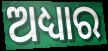
ଅଧ୍ୟାର